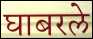
घाबरले